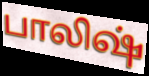
பாலிஷ்